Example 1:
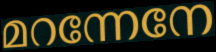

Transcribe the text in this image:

മറന്നേനേ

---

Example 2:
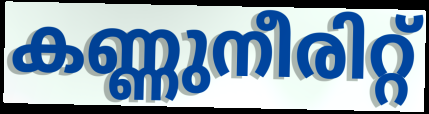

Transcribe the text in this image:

കണ്ണുനീരിറ്റ്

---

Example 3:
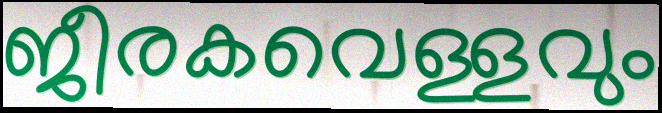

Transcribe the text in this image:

ജീരകവെള്ളവും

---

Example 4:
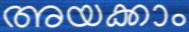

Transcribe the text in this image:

അയക്കാം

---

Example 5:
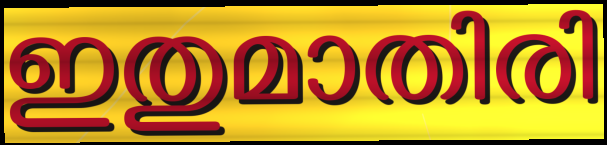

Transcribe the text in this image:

ഇതുമാതിരി